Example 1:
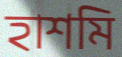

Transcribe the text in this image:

হাশমি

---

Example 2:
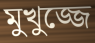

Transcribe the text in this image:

মুখুজ্জে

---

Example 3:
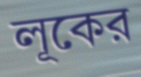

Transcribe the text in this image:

লূকের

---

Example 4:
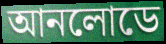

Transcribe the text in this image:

আনলোডে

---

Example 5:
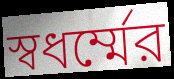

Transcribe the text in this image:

স্বধর্ম্মের